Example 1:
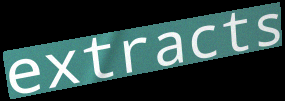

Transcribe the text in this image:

extracts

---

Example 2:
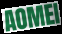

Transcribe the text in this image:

AOMEI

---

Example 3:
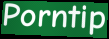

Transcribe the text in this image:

Porntip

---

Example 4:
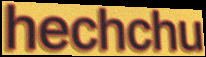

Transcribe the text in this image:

hechchu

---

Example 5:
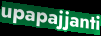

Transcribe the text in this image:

upapajjanti